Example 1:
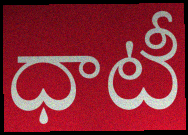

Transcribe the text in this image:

ధాటీ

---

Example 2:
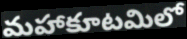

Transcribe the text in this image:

మహాకూటమిలో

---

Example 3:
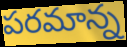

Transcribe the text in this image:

పరమాన్న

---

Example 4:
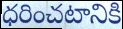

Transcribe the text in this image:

ధరించటానికి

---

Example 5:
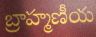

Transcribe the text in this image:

బ్రాహ్మణీయ